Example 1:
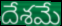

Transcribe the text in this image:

దేశమే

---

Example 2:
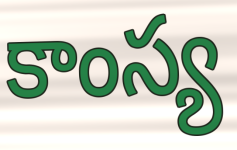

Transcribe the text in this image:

కాంస్య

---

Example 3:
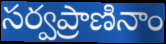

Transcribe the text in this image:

సర్వప్రాణినాం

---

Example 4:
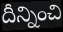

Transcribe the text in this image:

దీన్నించి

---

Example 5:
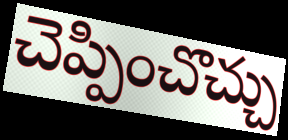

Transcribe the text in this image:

చెప్పించొచ్చు